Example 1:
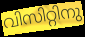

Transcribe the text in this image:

വിസിറ്റിനു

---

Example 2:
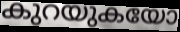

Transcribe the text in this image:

കുറയുകയോ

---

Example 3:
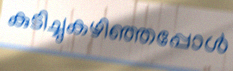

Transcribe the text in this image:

കുടിച്ചുകഴിഞ്ഞപ്പോൾ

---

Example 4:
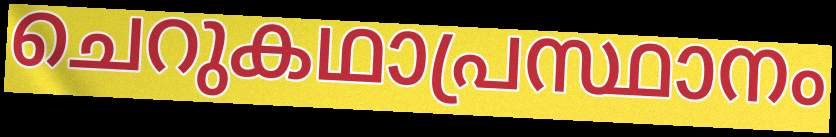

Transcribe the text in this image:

ചെറുകഥാപ്രസ്ഥാനം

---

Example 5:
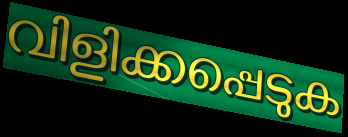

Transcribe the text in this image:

വിളിക്കപ്പെടുക